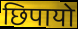
छिपायो